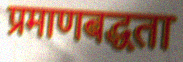
प्रमाणबद्धता